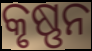
କୃଷ୍ଣନ